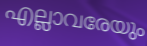
എല്ലാവരേയും